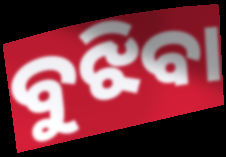
ବୁଝିବା